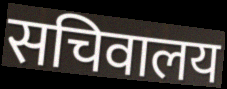
सचिवालय